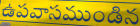
ఉపవాసముండిన